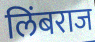
लिंबराज